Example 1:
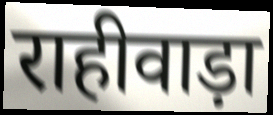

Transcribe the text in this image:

राहीवाड़ा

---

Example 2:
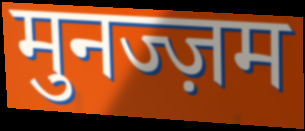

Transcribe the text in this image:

मुनज्ज़म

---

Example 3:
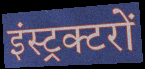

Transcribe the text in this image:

इंस्ट्रक्टरों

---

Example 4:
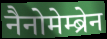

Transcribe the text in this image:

नैनोमेम्ब्रेन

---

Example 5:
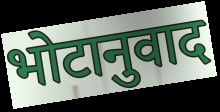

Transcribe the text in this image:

भोटानुवाद